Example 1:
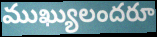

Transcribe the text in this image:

ముఖ్యులందరూ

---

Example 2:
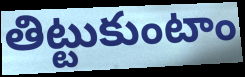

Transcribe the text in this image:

తిట్టుకుంటాం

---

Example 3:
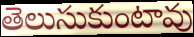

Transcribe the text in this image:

తెలుసుకుంటావు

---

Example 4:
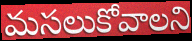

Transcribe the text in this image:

మసలుకోవాలని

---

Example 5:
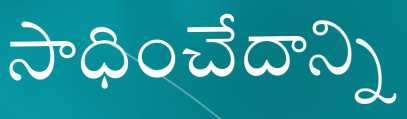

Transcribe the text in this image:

సాధించేదాన్ని